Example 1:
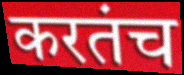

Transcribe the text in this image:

करतंच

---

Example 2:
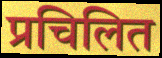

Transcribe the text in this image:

प्रचिलित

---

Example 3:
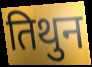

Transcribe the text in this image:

तिथुन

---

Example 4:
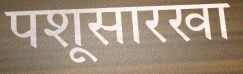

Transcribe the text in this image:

पशूसारखा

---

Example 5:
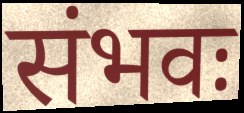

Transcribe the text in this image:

संभवः